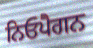
ਨਿਓਪੈਗਨ